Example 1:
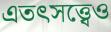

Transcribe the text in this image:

এতৎসত্ত্বেও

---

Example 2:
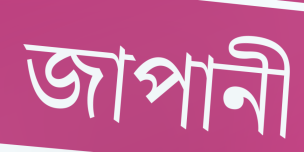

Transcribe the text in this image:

জাপানী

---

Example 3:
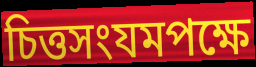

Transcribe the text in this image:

চিত্তসংযমপক্ষে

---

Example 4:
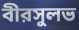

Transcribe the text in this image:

বীরসুলভ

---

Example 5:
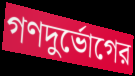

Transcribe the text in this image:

গণদুর্ভোগের